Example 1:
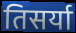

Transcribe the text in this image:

तिसर्या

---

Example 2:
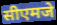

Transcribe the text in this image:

सीएमजे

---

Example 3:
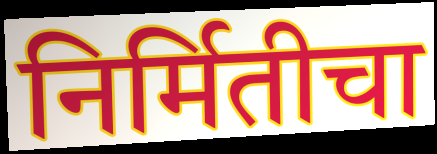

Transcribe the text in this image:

निर्मितीचा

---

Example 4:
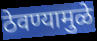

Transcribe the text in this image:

ठेवण्यामुळे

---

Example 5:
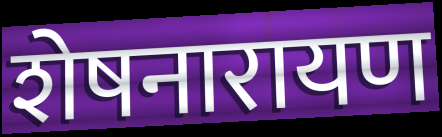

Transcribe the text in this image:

शेषनारायण